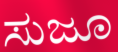
ಸುಜೂ